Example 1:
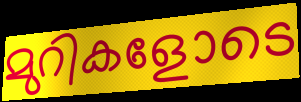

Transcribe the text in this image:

മുറികളോടെ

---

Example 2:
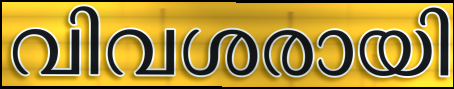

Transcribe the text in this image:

വിവശരായി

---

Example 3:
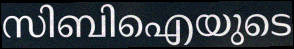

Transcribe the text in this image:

സിബിഐയുടെ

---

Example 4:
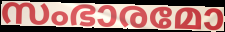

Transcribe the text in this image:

സംഭാരമോ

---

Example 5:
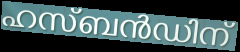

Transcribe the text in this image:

ഹസ്ബൻഡിന്